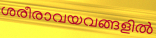
ശരീരാവയവങ്ങളിൽ